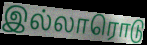
இல்லாரொடு